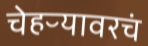
चेहऱ्यावरचं